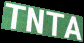
TNTA